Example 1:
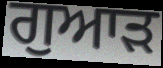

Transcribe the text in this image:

ਗੁਆੜ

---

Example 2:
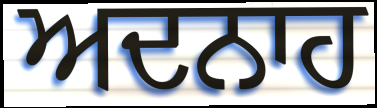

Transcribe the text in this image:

ਅਦਨਾਹ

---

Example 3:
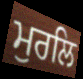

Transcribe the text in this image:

ਮੁਰਲਿ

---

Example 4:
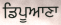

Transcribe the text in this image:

ਡਿਪੂਆਣਾ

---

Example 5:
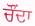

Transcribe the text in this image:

ਚੌਂਦਾ